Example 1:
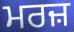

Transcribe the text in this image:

ਮਰਜ਼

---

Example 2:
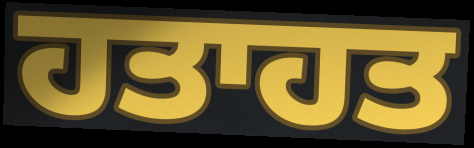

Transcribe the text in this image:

ਹਤਾਹਤ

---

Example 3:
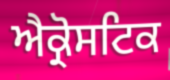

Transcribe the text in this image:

ਐਕ੍ਰੋਸਟਿਕ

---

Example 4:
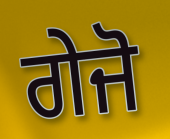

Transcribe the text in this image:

ਗੇਜੋ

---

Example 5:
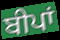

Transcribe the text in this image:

ਬੀਪਾਂ